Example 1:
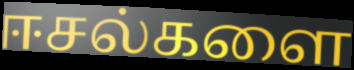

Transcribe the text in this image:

ஈசல்களை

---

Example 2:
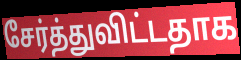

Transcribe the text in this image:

சேர்த்துவிட்டதாக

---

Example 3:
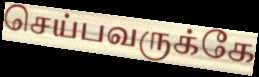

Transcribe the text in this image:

செய்பவருக்கே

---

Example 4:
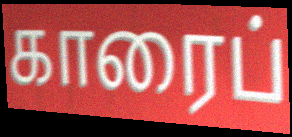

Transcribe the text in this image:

காரைப்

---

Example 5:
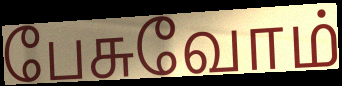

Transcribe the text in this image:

பேசுவோம்